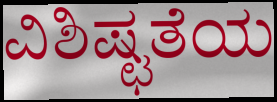
ವಿಶಿಷ್ಟತೆಯ